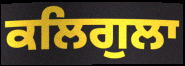
ਕਲਿਗੁਲਾ